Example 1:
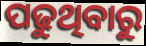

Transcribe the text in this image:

ପଢୁଥିବାରୁ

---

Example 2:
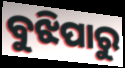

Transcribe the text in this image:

ବୁଝିପାରୁ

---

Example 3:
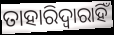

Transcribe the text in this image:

ତାହାରିଦ୍ୱାରାହିଁ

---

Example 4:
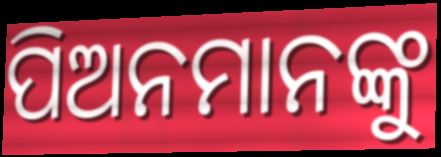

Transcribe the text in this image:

ପିଅନମାନଙ୍କୁ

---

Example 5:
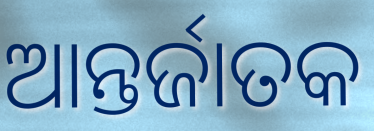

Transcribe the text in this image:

ଆନ୍ତର୍ଜାତକ